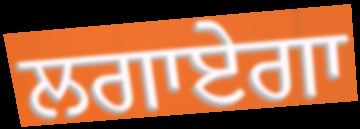
ਲਗਾਏਗਾ